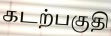
கடற்பகுதி